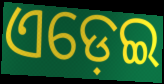
ଏଡ଼େଇ